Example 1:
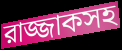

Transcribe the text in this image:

রাজ্জাকসহ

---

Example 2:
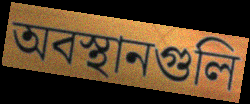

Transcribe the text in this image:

অবস্থানগুলি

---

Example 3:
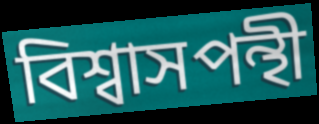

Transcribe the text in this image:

বিশ্বাসপন্থী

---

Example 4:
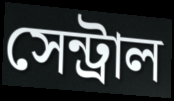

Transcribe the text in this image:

সেন্ট্রাল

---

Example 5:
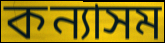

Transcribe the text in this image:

কন্যাসম